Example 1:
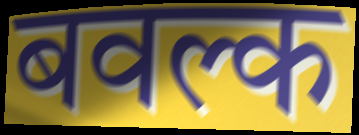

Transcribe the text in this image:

बवल्क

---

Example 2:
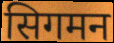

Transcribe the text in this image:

सिगमन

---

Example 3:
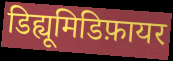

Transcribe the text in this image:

डिह्यूमिडिफ़ायर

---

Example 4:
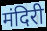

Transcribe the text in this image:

मंदिरी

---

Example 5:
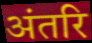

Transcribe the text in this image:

अंतरि